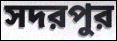
সদরপুর